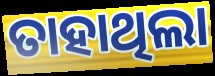
ତାହାଥିଲା